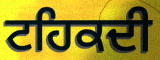
ਟਹਿਕਦੀ